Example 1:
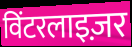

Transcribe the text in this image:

विंटरलाइज़र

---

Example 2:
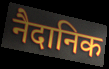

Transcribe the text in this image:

नैदानिक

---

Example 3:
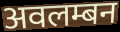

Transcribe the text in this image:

अवलम्बन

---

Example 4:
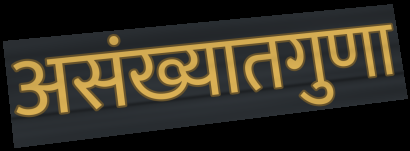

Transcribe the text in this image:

असंख्यातगुणा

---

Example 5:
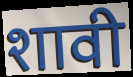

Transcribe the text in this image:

शावी